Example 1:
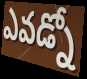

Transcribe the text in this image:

ఎవడ్నో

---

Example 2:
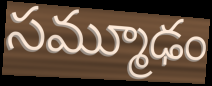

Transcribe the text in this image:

సమ్మూఢం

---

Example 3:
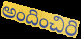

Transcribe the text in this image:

అందించిరి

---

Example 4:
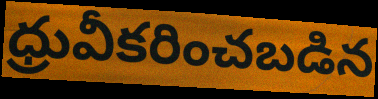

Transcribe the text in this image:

ధ్రువీకరించబడిన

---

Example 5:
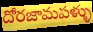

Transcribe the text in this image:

దోరజామపళ్ళు